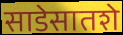
साडेसातशे